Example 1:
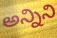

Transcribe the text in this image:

అన్నిని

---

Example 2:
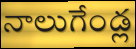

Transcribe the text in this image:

నాలుగేండ్ల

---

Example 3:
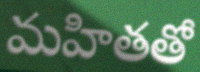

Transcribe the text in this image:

మహితతో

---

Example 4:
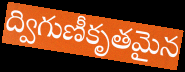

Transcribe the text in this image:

ద్విగుణీకృతమైన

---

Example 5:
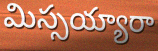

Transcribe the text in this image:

మిస్సయ్యారా